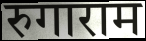
रुगाराम